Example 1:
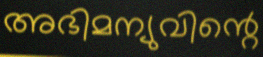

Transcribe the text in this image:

അഭിമന്യുവിന്റെ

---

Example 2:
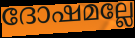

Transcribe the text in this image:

ദോഷമല്ലേ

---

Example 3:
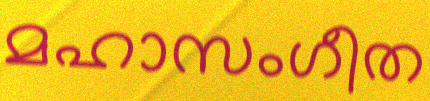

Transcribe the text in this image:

മഹാസംഗീത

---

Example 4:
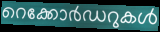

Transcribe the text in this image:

റെക്കോർഡറുകൾ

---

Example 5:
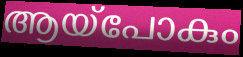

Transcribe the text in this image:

ആയ്പോകും